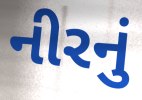
નીરનું